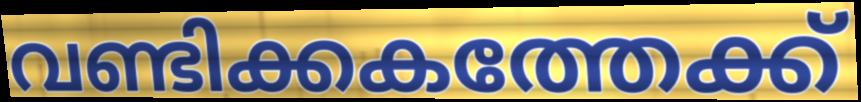
വണ്ടിക്കകത്തേക്ക്